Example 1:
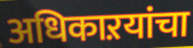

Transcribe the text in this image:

अधिकाऱयांचा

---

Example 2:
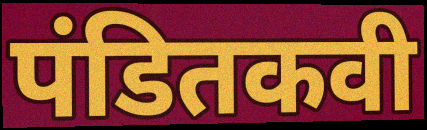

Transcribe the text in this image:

पंडितकवी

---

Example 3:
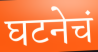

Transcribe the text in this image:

घटनेचं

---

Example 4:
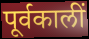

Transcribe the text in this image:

पूर्वकालीं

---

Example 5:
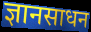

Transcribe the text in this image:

ज्ञानसाधन